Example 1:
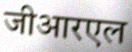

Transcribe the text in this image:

जीआरएल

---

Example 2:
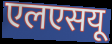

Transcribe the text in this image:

एलएसयू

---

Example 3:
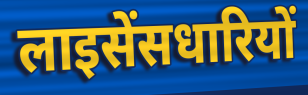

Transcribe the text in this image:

लाइसेंसधारियों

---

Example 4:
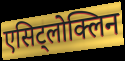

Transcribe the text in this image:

एसिट्लोक्लिन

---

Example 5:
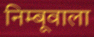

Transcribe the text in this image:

निम्बूवाला